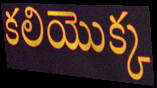
కలియొక్క